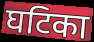
घटिका